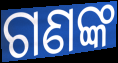
ଗଣଙ୍କ